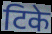
टिके